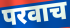
परवाच